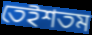
তেইশতম